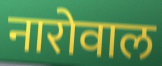
नारोवाल